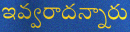
ఇవ్వరాదన్నారు